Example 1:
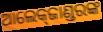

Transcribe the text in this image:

ଆଲେକ୍‍ଜାଣ୍ଡରଙ୍କ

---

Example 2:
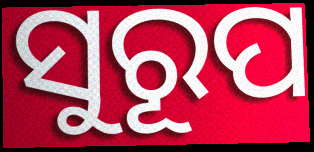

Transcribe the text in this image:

ସୁରୂପ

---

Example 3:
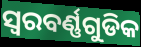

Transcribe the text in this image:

ସ୍ୱରବର୍ଣ୍ଣଗୁଡିକ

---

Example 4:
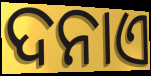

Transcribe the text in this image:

ଦନାଏ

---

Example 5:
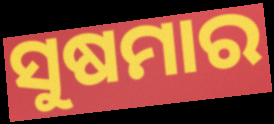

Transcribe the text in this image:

ସୁଷମାର